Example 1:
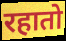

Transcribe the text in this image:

रहातो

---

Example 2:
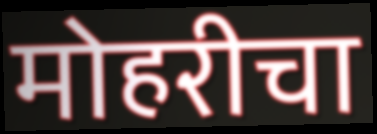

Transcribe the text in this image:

मोहरीचा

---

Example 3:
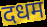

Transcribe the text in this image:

दधम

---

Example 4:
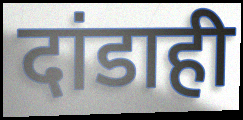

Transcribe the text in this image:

दांडाही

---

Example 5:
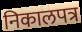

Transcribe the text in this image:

निकालपत्र